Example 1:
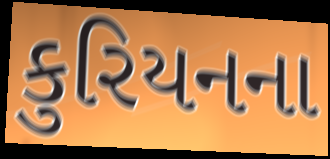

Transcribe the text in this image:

કુરિયનના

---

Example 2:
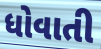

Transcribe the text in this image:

ધોવાતી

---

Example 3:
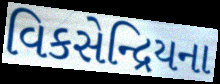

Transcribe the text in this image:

વિકસેન્દ્રિયના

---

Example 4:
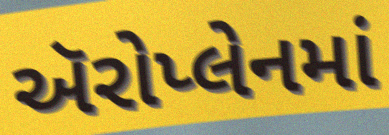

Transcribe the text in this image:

ઍરોપ્લેનમાં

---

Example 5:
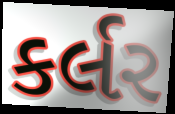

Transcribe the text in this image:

કર્લર